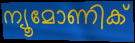
ന്യൂമോണിക്